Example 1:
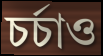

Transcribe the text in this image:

চর্চাও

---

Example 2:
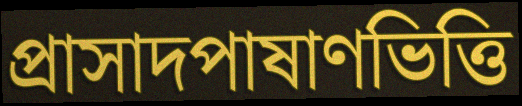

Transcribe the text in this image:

প্রাসাদপাষাণভিত্তি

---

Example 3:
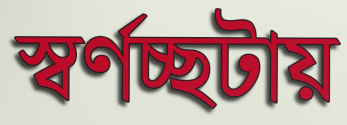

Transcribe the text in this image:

স্বর্ণচ্ছটায়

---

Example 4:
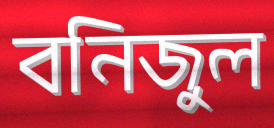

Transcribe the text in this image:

বনিজুল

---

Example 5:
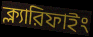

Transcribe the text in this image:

ক্ল্যারিফাইং